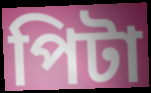
পিটা